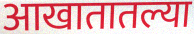
आखातातल्या